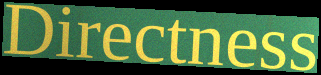
Directness